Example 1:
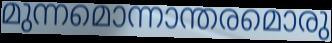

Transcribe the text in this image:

മുന്നമൊന്നാന്തരമൊരു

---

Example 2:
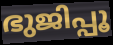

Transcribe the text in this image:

ഭുജിപ്പൂ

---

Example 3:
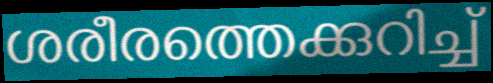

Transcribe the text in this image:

ശരീരത്തെക്കുറിച്ച്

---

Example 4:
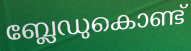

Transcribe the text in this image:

ബ്ലേഡുകൊണ്ട്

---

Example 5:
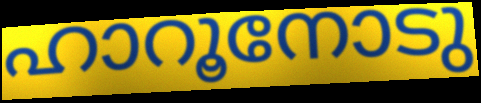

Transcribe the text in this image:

ഹാറൂനോടു